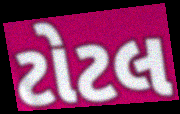
ટોટલ